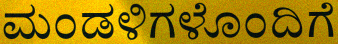
ಮಂಡಳಿಗಳೊಂದಿಗೆ